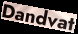
Dandvat